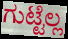
ಗುಟ್ಟೆಲ್ಲ